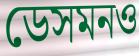
ডেসমনও